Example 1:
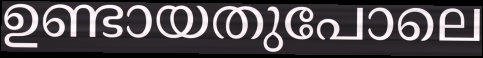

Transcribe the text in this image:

ഉണ്ടായതുപോലെ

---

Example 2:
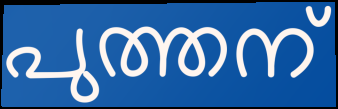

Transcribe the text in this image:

പുത്തന്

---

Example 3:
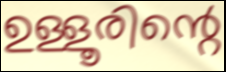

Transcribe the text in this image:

ഉള്ളൂരിന്റെ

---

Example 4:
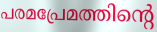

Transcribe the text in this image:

പരമപ്രേമത്തിന്റെ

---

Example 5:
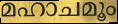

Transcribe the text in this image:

മഹാചമൂം